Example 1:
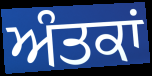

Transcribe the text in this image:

ਅੰਤਕਾਂ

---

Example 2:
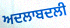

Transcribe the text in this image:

ਅਦਲਾਬਦਲੀ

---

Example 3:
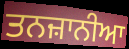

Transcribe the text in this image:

ਤਨਜ਼ਾਨੀਆ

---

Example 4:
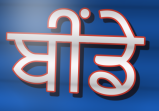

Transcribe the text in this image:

ਬੀਂਡੇ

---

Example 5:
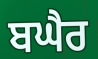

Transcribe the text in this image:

ਬਘੈਰ